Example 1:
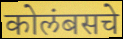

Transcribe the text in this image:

कोलंबसचे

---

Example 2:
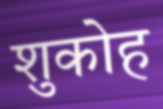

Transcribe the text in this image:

शुकोह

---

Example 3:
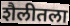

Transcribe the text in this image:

शैलीतला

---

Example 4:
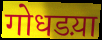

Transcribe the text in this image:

गोधडय़ा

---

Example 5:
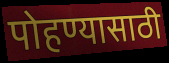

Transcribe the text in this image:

पोहण्यासाठी